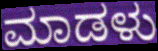
ಮಾಡಳು